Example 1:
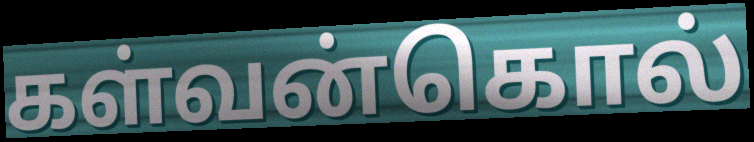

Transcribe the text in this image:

கள்வன்கொல்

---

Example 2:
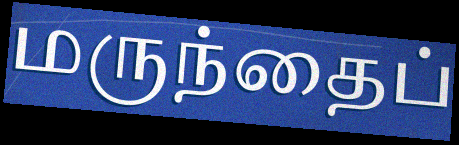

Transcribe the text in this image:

மருந்தைப்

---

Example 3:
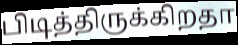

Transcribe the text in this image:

பிடித்திருக்கிறதா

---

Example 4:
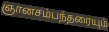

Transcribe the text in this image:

ஞானசம்பந்தரையும்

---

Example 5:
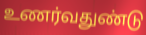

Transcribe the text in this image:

உணர்வதுண்டு